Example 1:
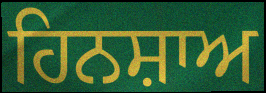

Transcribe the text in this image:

ਹਿਨਸ਼ਾਅ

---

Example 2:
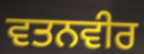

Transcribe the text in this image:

ਵਤਨਵੀਰ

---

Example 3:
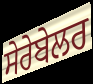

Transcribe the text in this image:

ਸੇਰੇਬੇਲਰ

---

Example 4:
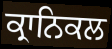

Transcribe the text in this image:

ਕ੍ਰਾਨਿਕਲ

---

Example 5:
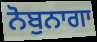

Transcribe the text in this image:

ਨੋਬੁਨਾਗਾ